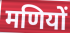
मणियों